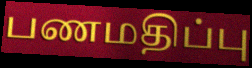
பணமதிப்பு